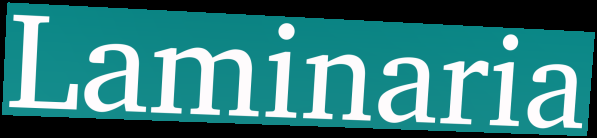
Laminaria